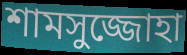
শামসুজ্জোহা